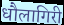
धौलागिरी